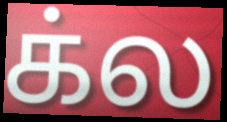
க்ல